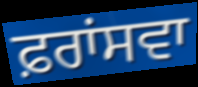
ਫ਼ਰਾਂਸਵਾ